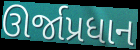
ઊર્જાપ્રધાન